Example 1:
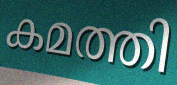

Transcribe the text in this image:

കമത്തി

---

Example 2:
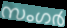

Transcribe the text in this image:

സംഗർ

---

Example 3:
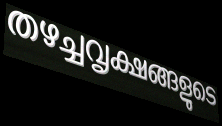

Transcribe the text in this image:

തഴച്ചവൃക്ഷങ്ങളുടെ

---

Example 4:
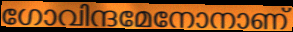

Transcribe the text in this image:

ഗോവിന്ദമേനോനാണ്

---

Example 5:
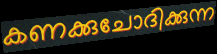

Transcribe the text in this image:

കണക്കുചോദിക്കുന്ന